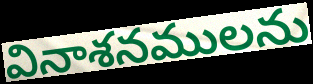
వినాశనములను